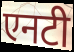
एनटी